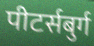
पीटर्सबुर्ग